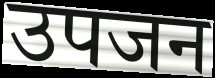
उपजन